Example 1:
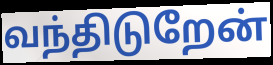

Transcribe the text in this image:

வந்திடுறேன்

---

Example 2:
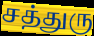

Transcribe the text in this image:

சத்துரு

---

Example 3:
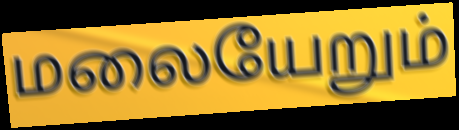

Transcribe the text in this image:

மலையேறும்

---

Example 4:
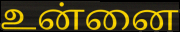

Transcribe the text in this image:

உன்னை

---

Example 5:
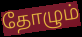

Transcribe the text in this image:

தோழும்